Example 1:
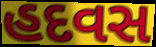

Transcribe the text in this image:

હદવસ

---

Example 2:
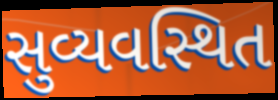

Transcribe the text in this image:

સુવ્યવસ્થિત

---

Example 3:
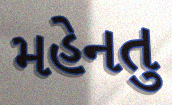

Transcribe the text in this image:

મહેનતુ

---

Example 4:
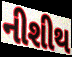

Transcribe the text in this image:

નીશીથ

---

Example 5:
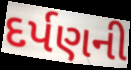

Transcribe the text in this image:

દર્પણની